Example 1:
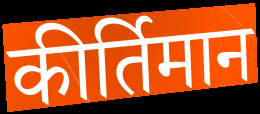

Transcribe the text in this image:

कीर्तिमान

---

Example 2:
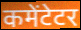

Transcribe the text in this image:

कमेंटेटर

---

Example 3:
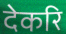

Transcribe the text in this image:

देकरि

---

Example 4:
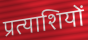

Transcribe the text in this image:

प्रत्‍याशियों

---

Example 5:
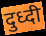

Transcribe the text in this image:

दुध्दी